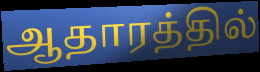
ஆதாரத்தில்